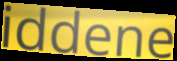
iddene